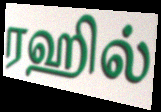
ரஹில்